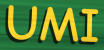
UMI